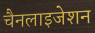
चैनलाइजेशन